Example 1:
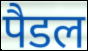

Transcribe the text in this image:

पैडल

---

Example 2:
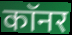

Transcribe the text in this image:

कॉनर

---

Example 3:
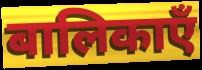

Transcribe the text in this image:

बालिकाएँ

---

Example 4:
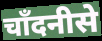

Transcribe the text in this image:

चाँदनीसे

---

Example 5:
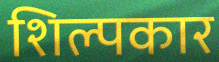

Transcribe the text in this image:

शिल्पकार